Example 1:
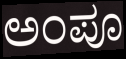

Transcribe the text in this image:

ಅಂಪೂ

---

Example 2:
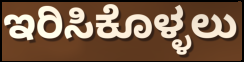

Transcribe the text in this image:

ಇರಿಸಿಕೊಳ್ಳಲು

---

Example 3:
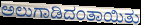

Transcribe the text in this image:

ಅಲುಗಾಡಿದಂತಾಯಿತು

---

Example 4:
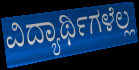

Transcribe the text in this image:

ವಿದ್ಯಾರ್ಥಿಗಳೆಲ್ಲ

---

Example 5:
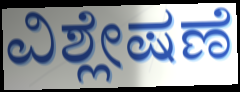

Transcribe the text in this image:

ವಿಶ್ಲೇಷಣೆ